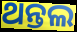
ଥନ୍ତଲ